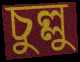
চুল্লু